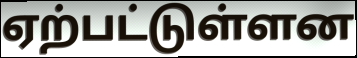
ஏற்பட்டுள்ளன